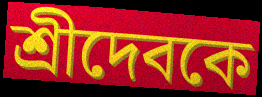
শ্রীদেবকে